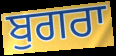
ਬੁਗਰਾ